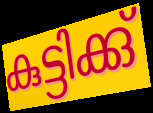
കുട്ടിക്കു്